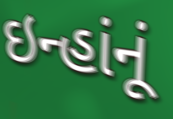
ઇન્હાંનૂં